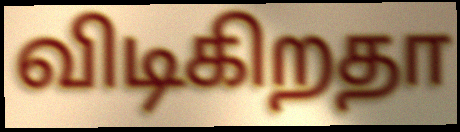
விடிகிறதா